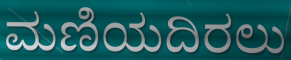
ಮಣಿಯದಿರಲು